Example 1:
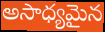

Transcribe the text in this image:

అసాధ్యమైన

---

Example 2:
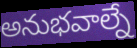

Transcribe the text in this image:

అనుభవాల్నే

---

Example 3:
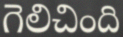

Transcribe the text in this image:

గెలిచింది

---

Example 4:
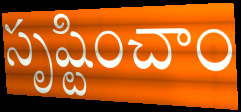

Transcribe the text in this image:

సృష్టించాం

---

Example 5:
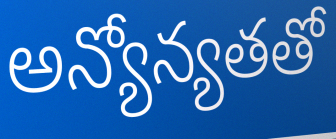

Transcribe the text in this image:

అన్యోన్యతతో